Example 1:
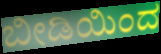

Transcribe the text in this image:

ಬೀಡಿಯಿಂದ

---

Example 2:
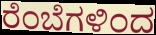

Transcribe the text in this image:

ರೆಂಬೆಗಳಿಂದ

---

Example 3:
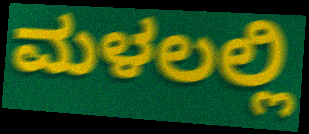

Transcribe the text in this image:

ಮಳಲಲ್ಲಿ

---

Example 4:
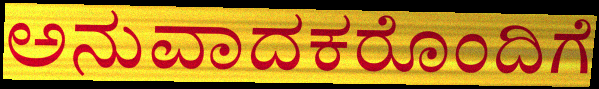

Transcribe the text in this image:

ಅನುವಾದಕರೊಂದಿಗೆ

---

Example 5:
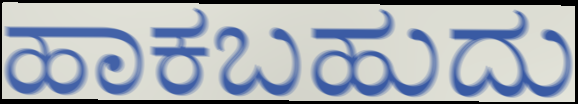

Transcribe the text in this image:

ಹಾಕಬಹುದು